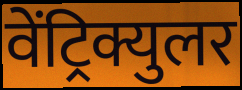
वेंट्रिक्युलर